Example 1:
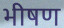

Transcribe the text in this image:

भीषण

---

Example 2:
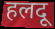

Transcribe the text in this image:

हलदू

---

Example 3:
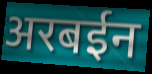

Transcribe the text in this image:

अरबईन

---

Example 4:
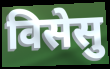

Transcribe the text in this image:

विसेसु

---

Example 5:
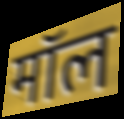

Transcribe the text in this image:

मॉल